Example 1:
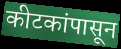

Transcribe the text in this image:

कीटकांपासून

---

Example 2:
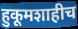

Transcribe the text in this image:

हुकूमशाहीच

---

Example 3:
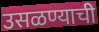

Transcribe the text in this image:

उसळण्याची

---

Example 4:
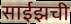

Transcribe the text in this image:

साईझची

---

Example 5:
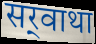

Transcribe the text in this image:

सर्वाथा